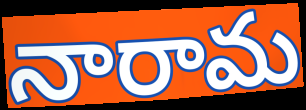
నారామ